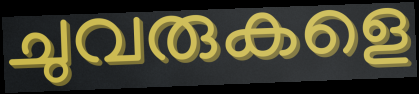
ചുവരുകളെ